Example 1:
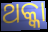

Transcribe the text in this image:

ଥକ୍କା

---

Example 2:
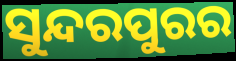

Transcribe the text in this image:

ସୁନ୍ଦରପୁରର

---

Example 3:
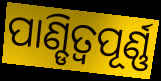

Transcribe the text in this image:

ପାଣ୍ଡିତ୍ୱପୂର୍ଣ୍ଣ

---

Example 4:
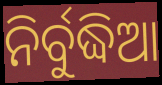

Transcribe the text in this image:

ନିର୍ବୁଦ୍ଧିଆ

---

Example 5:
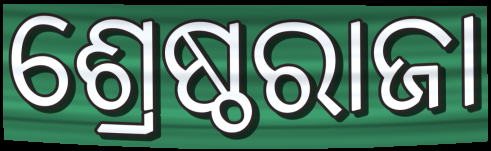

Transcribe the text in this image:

ଶ୍ରେଷ୍ଠରାଜା